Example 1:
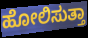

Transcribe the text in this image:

ಹೋಲಿಸುತ್ತಾ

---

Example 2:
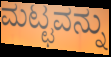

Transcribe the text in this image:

ಮಟ್ಟವನ್ನು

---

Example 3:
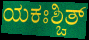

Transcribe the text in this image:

ಯಕಃಶ್ಚಿತ್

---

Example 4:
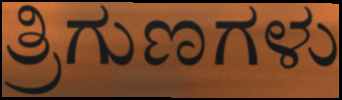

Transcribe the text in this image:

ತ್ರಿಗುಣಗಳು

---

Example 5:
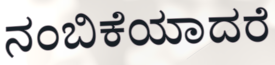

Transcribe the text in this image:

ನಂಬಿಕೆಯಾದರೆ